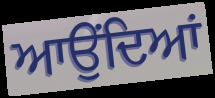
ਆਉਂਦਿਆਂ